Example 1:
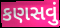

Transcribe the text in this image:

કણસવું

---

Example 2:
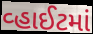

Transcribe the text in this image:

વ્હાઈટમાં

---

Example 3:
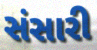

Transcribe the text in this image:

સંસારી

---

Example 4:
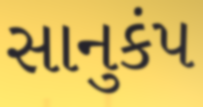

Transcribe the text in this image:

સાનુકંપ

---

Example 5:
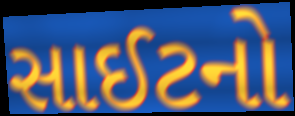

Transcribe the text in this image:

સાઈટનો